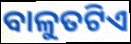
ବାଳୁତଟିଏ